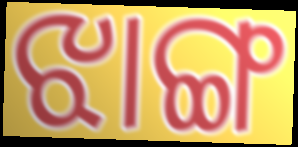
ଝାଙ୍ଗ